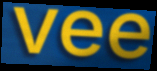
vee